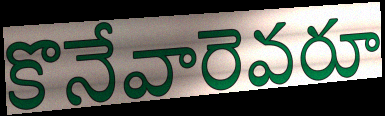
కొనేవారెవరూ